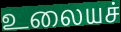
உலையச்